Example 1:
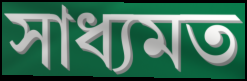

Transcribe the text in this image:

সাধ্যমত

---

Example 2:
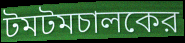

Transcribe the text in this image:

টমটমচালকের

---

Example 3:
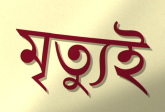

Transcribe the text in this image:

মৃত্যুই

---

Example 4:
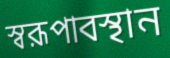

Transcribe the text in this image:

স্বরূপাবস্থান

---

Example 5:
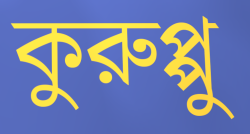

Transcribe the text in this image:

কুরুপ্পু